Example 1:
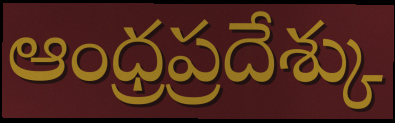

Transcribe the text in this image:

ఆంధ్రప్రదేశ్కు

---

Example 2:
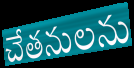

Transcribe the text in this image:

చేతనులను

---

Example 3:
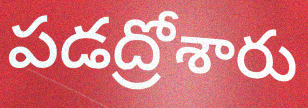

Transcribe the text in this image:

పడద్రోశారు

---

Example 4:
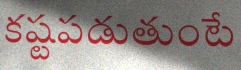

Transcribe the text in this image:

కష్టపడుతుంటే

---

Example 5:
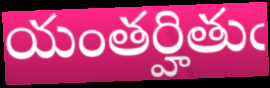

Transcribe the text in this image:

యంతర్హితుఁ